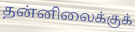
தன்னிலைக்குக்